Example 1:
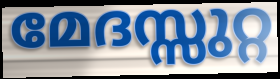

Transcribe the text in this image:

മേദസ്സുറ്റ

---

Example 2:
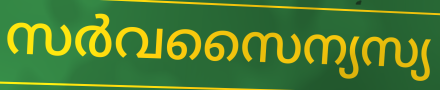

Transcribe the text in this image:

സർവസൈന്യസ്യ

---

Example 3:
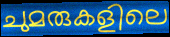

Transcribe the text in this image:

ചുമരുകളിലെ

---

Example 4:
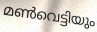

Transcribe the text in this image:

മൺവെട്ടിയും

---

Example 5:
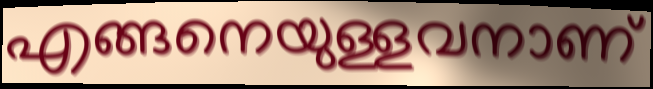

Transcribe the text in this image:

എങ്ങനെയുള്ളവനാണ്